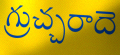
గ్రుచ్చరాదె